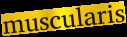
muscularis